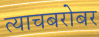
त्याचबरोबर